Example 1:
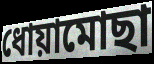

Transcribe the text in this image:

ধোয়ামোছা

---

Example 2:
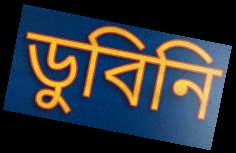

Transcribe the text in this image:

ডুবিনি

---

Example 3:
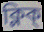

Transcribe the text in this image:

ক্লিক্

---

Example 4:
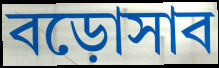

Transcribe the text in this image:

বড়োসাব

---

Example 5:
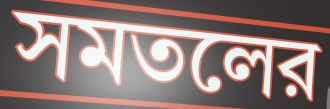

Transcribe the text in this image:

সমতলের